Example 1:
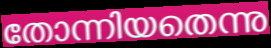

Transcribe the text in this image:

തോന്നിയതെന്നു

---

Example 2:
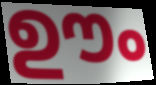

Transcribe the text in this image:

ഊം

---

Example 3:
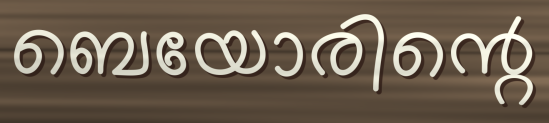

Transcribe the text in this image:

ബെയോരിന്റെ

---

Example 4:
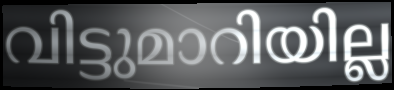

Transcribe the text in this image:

വിട്ടുമാറിയില്ല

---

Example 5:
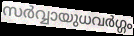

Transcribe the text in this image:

സർവ്വായുധവർഗ്ഗം